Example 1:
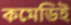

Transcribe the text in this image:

কমেডিই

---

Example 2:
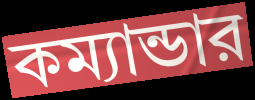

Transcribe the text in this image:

কম্যান্ডার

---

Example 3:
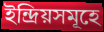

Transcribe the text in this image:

ইন্দ্রিয়সমূহে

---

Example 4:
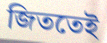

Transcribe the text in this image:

জিততেই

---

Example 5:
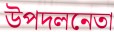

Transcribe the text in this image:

উপদলনেতা